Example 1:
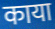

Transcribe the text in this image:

काया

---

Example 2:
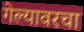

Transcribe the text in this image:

गेल्यावरचा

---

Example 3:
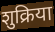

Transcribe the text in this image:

शुक्रिया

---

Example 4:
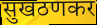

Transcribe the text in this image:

सुखठणकर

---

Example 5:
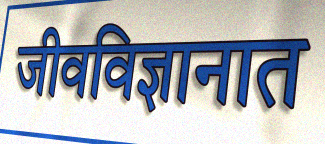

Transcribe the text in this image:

जीवविज्ञानात